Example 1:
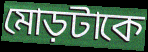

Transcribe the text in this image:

মোড়টাকে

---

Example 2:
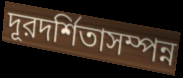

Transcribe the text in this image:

দূরদর্শিতাসম্পন্ন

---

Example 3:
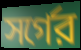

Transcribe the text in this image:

সর্গের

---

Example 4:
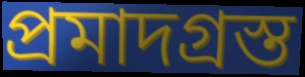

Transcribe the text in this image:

প্রমাদগ্রস্ত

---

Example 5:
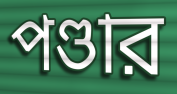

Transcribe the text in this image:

পণ্ডার